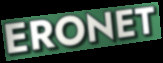
ERONET